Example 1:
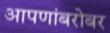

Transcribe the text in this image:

आपणांबरोबर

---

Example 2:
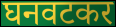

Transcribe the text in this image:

घनवटकर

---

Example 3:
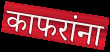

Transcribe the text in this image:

काफरांना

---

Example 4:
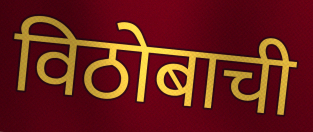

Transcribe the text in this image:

विठोबाची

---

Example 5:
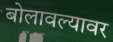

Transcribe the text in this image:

बोलावल्यावर